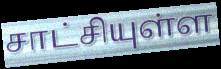
சாட்சியுள்ள